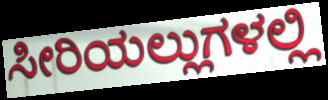
ಸೀರಿಯಲ್ಲುಗಳಲ್ಲಿ